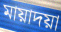
মায়াদয়া